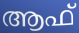
ആഫ്